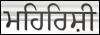
ਮਹਿਰਿਸ਼ੀ